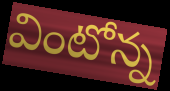
వింటోన్న